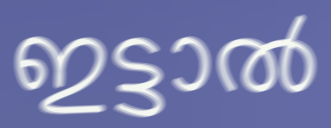
ഇട്ടാൽ